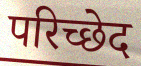
परिच्छेद